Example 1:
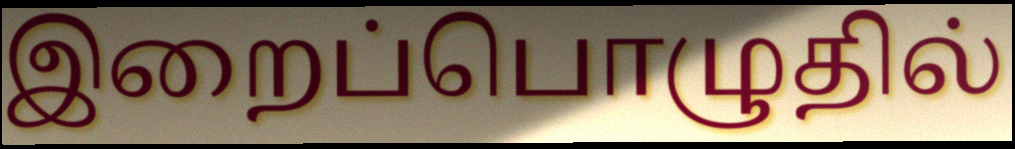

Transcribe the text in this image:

இறைப்பொழுதில்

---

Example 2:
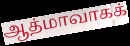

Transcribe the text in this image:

ஆத்மாவாகக்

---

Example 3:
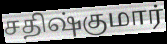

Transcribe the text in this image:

சதிஷ்குமார்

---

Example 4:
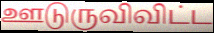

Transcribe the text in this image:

ஊடுருவிவிட்ட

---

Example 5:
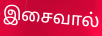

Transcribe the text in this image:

இசைவால்